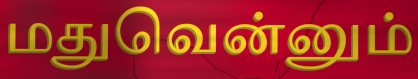
மதுவென்னும்